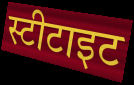
स्टीटाइट